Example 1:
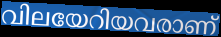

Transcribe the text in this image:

വിലയേറിയവരാണ്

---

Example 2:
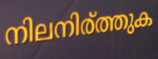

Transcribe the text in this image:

നിലനിര്ത്തുക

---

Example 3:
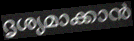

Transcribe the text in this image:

ദൃശ്യമാക്കാൻ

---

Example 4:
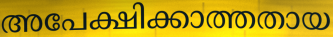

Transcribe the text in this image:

അപേക്ഷിക്കാത്തതായ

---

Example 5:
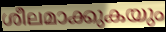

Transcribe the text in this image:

ശീലമാക്കുകയും